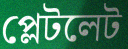
প্লেটলেট